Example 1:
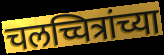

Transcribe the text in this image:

चलच्चित्रांच्या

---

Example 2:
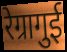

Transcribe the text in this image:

रेग्रागुई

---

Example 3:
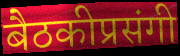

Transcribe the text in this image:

बैठकीप्रसंगी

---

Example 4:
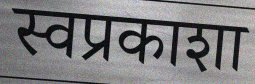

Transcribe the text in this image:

स्वप्रकाशा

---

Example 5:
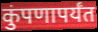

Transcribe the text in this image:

कुंपणापर्यंत